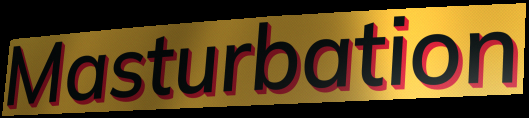
Masturbation